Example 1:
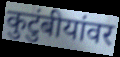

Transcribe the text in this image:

कुटुंबीयांवर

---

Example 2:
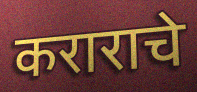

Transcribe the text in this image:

कराराचे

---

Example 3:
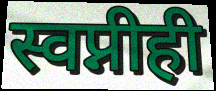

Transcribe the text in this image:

स्वप्नीही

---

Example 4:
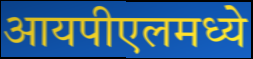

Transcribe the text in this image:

आयपीएलमध्ये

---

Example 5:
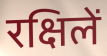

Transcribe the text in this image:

रक्षिलें